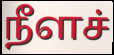
நீளச்